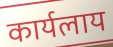
कार्यलाय